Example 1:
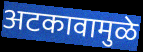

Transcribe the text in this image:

अटकावामुळे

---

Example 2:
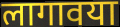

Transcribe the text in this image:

लागावया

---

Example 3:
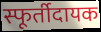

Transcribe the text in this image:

स्फूर्तीदायक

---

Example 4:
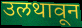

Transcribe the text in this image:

उलथावून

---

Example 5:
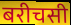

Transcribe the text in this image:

बरीचसी